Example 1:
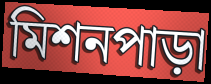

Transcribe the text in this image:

মিশনপাড়া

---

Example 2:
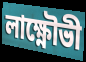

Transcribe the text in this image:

লাক্ষ্ণৌভী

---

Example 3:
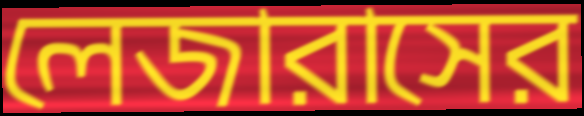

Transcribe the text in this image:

লেজারাসের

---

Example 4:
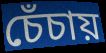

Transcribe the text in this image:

চেঁচায়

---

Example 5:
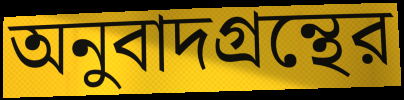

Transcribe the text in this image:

অনুবাদগ্রন্থের